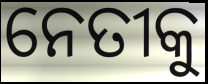
ନେତୀକୁ